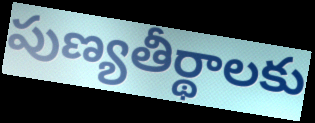
పుణ్యతీర్థాలకు